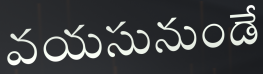
వయసునుండే